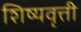
शिष्यवृत्ती